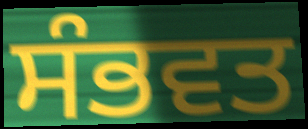
ਸੰਭਵਤ